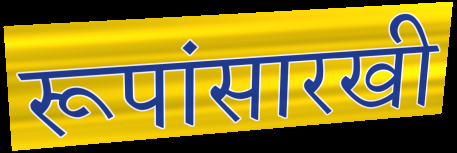
रूपांसारखी